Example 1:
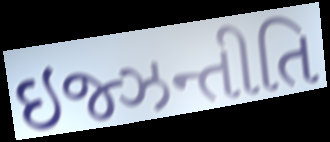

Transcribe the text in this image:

ઇજ્ઝન્તીતિ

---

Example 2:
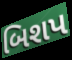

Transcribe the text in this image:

બિશપ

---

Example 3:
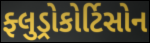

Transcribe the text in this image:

ફ્લુડ્રોકોર્ટિસોન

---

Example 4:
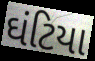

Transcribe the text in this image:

ઘંટિયા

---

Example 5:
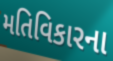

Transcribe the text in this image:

મતિવિકારના